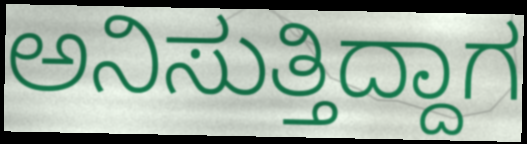
ಅನಿಸುತ್ತಿದ್ದಾಗ